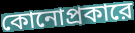
কোনোপ্রকারে